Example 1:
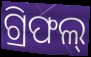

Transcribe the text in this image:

ଗ୍ରିଫଲ୍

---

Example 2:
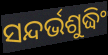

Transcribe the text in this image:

ସନ୍ଦର୍ଭଶୁଦ୍ଧିଂ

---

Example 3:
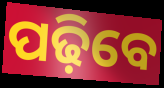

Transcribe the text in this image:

ପଢ଼ିବେ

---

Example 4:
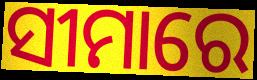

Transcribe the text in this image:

ସୀମାରେ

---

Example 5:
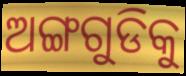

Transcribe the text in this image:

ଅଙ୍ଗଗୁଡିକୁ